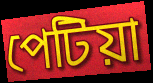
পেটিয়া